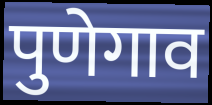
पुणेगाव